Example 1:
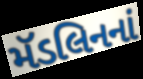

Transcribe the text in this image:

મૅડલિનનાં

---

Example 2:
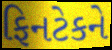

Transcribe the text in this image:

ફિનટેકને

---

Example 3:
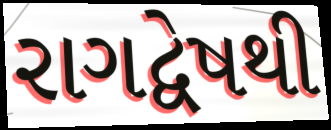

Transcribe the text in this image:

રાગદ્વેષથી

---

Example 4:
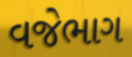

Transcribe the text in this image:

વજેભાગ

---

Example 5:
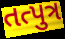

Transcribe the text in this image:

તત્પુત્ર